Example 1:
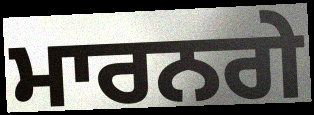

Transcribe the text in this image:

ਮਾਰਨਗੇ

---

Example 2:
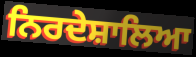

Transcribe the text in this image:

ਨਿਰਦੇਸ਼ਾਲਿਆ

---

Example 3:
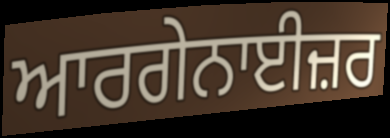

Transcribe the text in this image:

ਆਰਗੇਨਾਈਜ਼ਰ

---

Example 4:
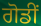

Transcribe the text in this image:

ਗੋਡੀਂ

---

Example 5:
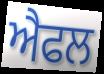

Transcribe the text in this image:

ਐਫਲ